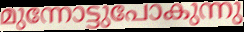
മുന്നോട്ടുപോകുന്നു